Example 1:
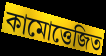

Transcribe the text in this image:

কামোত্তেজিত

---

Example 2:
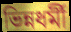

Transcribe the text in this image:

ভিন্নধর্মী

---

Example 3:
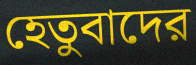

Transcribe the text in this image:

হেতুবাদের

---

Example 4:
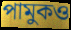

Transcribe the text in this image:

পামুকও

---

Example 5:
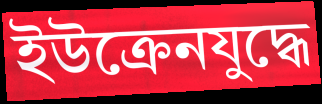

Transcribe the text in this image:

ইউক্রেনযুদ্ধে